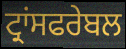
ਟ੍ਰਾਂਸਫਰੇਬਲ